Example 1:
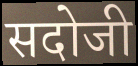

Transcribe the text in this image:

सदोजी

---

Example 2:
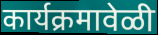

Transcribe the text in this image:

कार्यक्रमावेळी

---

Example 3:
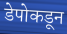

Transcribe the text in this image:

डेपोकडून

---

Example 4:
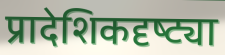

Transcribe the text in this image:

प्रादेशिकदृष्ट्या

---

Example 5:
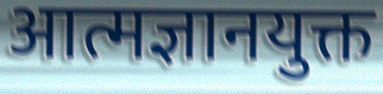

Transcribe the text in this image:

आत्मज्ञानयुक्त